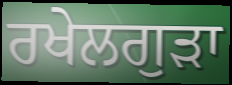
ਰਖੇਲਗੁੜਾ